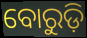
ବୋରୁଡ଼ି